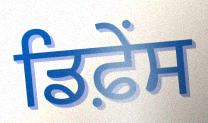
ਡਿਫ਼ੇੰਸ